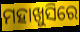
ମହାଖୁସିରେ